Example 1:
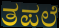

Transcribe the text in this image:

ತಪಲೆ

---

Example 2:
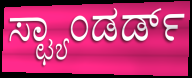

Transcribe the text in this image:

ಸ್ಟ್ಯಾಂಡರ್ಡ್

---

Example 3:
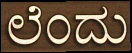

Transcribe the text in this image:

ಲೆಂದು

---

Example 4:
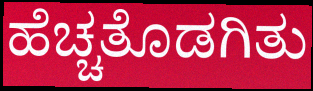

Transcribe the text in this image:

ಹೆಚ್ಚತೊಡಗಿತು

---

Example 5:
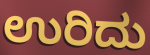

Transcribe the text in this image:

ಉರಿದು